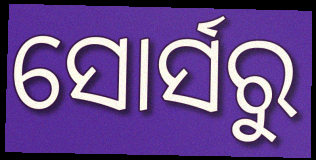
ସୋର୍ସରୁ